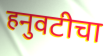
हनुवटीचा